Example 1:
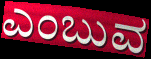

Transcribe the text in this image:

ಎಂಬುವ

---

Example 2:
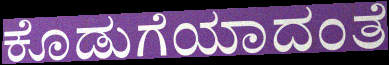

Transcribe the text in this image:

ಕೊಡುಗೆಯಾದಂತೆ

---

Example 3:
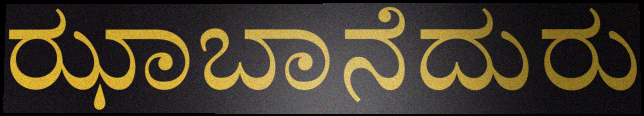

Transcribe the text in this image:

ಝಾಬಾನೆದುರು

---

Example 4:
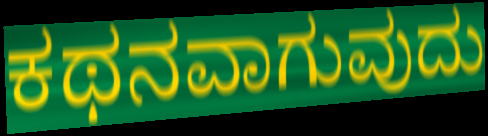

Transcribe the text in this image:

ಕಥನವಾಗುವುದು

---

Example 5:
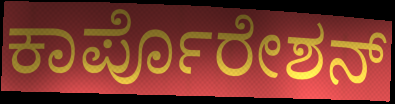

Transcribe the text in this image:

ಕಾರ್ಪೊರೇಶನ್